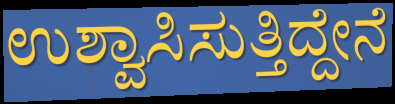
ಉಶ್ವಾಸಿಸುತ್ತಿದ್ದೇನೆ